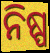
ନିଷ୍ପ